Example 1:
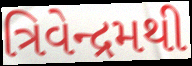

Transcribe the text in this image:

ત્રિવેન્દ્રમથી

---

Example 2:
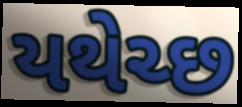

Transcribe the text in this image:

યથેચ્છ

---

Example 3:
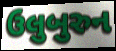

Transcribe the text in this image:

ઉલુબુરુન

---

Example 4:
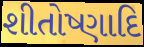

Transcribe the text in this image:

શીતોષ્ણાદિ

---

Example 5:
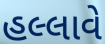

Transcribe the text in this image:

હલ્લાવે